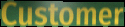
Customer